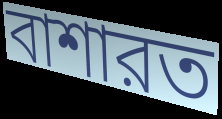
বাশারত